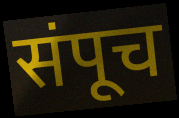
संपूच